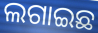
ଲଗାଇଛ